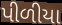
પીળીયા